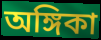
অঙ্গিকা